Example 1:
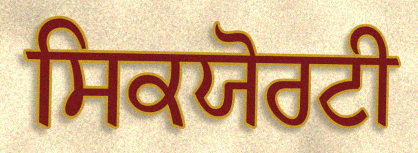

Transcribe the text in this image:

ਸਿਕਯੋਰਟੀ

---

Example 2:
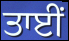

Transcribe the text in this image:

ਤਾਈਂ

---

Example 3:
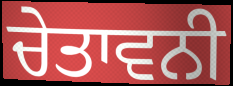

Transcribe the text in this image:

ਚੇਤਾਵਨੀ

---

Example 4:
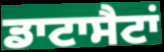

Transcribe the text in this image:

ਡਾਟਾਸੈਟਾਂ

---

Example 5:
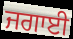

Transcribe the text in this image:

ਜਗਾਈ